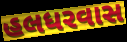
હલધરવાસ